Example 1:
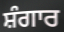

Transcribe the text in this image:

ਸ਼ੰਗਾਰ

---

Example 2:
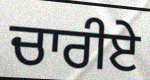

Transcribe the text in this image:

ਚਾਰੀਏ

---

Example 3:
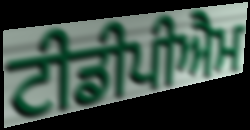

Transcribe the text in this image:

ਟੀਡੀਪੀਐਮ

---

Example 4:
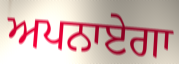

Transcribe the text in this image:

ਅਪਨਾਏਗਾ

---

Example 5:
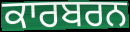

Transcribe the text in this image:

ਕਾਰਬਰਨ